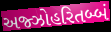
અજ્ઝોહરિતબ્બં